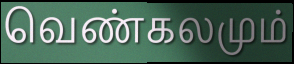
வெண்கலமும்